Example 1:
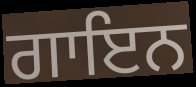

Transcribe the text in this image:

ਗਾਇਨ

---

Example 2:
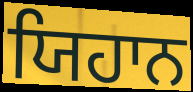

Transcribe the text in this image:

ਯਿਹਾਨ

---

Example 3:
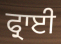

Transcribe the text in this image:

ਫ੍ਰਾਈ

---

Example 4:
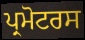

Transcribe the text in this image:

ਪ੍ਰਮੋਟਰਸ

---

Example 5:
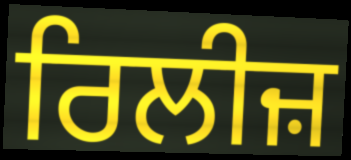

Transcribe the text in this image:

ਰਿਲੀਜ਼